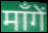
माँगें